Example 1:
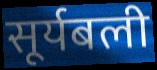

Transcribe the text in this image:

सूर्यबली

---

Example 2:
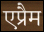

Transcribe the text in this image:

एप्रैम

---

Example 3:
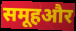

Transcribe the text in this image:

समूहऔर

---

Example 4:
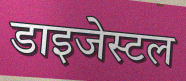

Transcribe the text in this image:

डाइजेस्टल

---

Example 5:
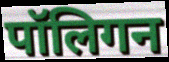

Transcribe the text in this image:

पॉलिगन